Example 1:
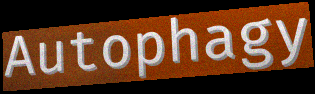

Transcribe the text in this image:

Autophagy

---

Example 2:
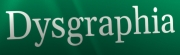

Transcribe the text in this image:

Dysgraphia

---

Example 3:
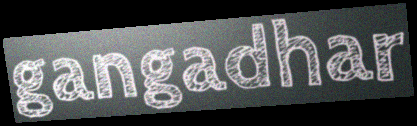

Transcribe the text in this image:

gangadhar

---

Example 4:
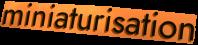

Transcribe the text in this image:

miniaturisation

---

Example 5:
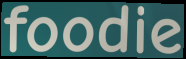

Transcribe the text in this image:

foodie